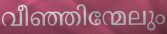
വീഞ്ഞിന്മേലും